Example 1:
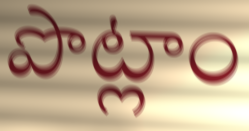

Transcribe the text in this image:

పొట్లాం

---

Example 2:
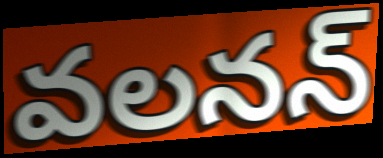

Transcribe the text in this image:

వలనన్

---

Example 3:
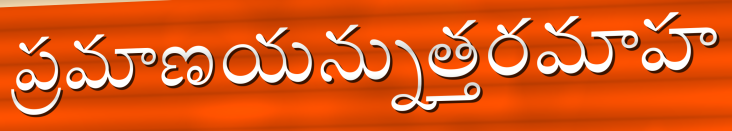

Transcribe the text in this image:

ప్రమాణయన్నుత్తరమాహ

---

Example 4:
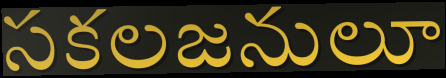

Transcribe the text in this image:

సకలజనులూ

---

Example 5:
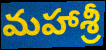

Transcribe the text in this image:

మహాశ్రీ